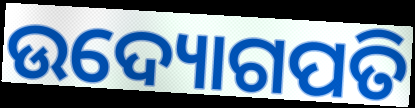
ଉଦ୍ୟୋଗପତି